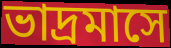
ভাদ্রমাসে